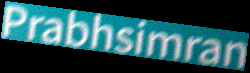
Prabhsimran